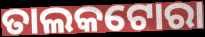
ତାଲକଟୋରା